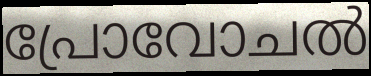
പ്രോവോചൽ